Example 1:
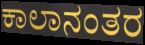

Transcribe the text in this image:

ಕಾಲಾನಂತರ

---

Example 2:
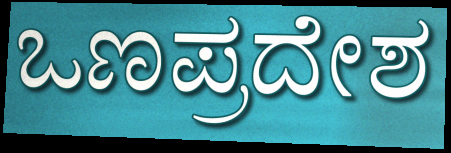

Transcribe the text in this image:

ಒಣಪ್ರದೇಶ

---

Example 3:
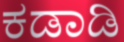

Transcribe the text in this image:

ಕಡಾಡಿ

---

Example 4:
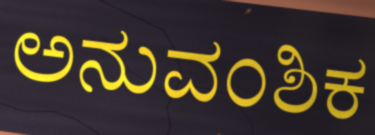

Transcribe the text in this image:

ಅನುವಂಶಿಕ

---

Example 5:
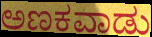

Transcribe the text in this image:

ಅಣಕವಾಡು